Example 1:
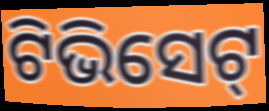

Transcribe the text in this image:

ଟିଭିସେଟ୍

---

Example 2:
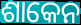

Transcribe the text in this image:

ଶାକେନ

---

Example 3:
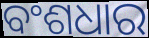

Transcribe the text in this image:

ବଂଶଧାର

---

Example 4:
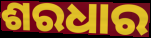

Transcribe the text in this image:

ଶରଧାର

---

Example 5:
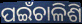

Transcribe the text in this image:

ପଇଁଚାଳିଶି